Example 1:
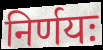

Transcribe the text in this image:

निर्णयः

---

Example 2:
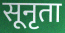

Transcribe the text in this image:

सूनृता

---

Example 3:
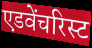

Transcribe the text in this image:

एडवेंचरिस्ट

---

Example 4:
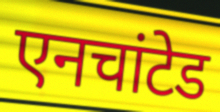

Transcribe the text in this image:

एनचांटेड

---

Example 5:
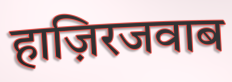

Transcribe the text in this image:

हाज़िरजवाब